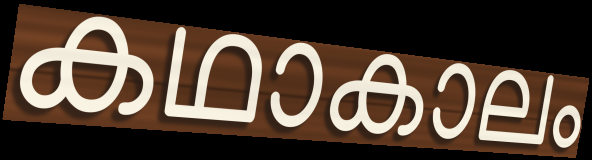
കഥാകാലം